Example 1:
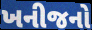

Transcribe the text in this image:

ખનીજનો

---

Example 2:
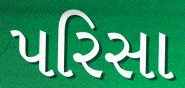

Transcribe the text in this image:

પરિસા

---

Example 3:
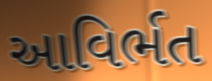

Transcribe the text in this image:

આવિર્ભત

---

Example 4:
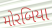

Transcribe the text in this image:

મોરબિયા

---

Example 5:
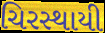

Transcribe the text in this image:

ચિરસ્થાયી